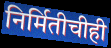
निर्मितीचीही